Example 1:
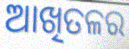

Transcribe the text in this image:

ଆଖିତଳର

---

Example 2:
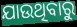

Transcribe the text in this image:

ଯାଉଥିବାରୁ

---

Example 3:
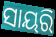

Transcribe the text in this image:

ସାୟରି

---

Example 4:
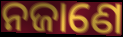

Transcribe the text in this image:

ନଜାଣେ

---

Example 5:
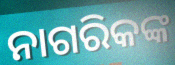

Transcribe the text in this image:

ନାଗରିକଙ୍କ